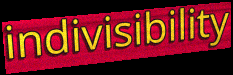
indivisibility